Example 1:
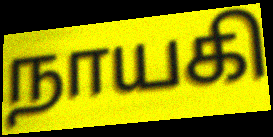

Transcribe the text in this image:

நாயகி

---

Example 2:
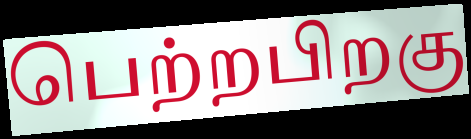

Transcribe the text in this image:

பெற்றபிறகு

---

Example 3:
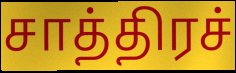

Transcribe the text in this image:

சாத்திரச்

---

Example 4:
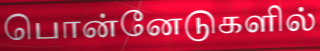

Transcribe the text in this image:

பொன்னேடுகளில்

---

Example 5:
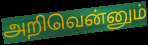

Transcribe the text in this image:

அறிவென்னும்